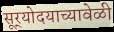
सूर्योदयाच्यावेळी